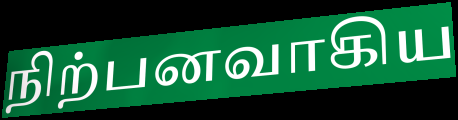
நிற்பனவாகிய